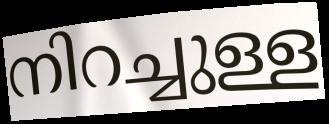
നിറച്ചുള്ള